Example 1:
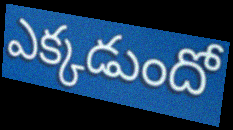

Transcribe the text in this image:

ఎక్కడుందో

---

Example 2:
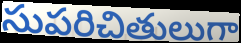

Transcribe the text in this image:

సుపరిచితులుగా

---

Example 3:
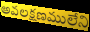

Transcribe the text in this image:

అవలక్షణములేని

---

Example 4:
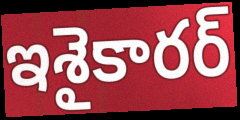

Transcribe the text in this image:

ఇశైకారర్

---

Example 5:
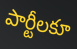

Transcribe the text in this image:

పార్టీలకూ